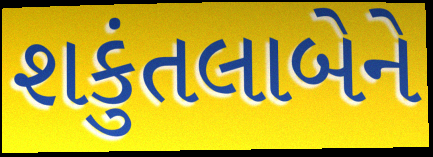
શકુંતલાબેને